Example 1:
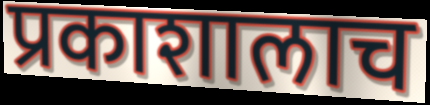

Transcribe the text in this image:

प्रकाशालाच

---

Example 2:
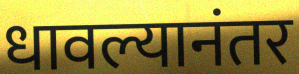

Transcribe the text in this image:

धावल्यानंतर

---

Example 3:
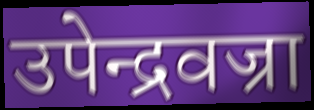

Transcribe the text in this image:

उपेन्द्रवज्रा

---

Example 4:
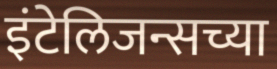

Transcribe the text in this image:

इंटेलिजन्सच्या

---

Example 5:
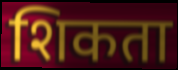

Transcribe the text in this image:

शिकता